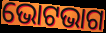
ଭୋଟଭାଗ